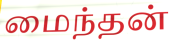
மைந்தன்